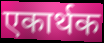
एकार्थक